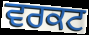
ਵਰਕਟ